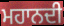
ਮਹਾਨਦੀ